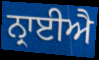
ਨ੍ਰਾਈਐ